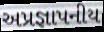
અપ્રજ્ઞાપનીય